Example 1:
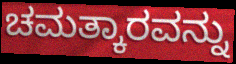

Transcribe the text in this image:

ಚಮತ್ಕಾರವನ್ನು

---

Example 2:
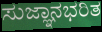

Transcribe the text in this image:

ಸುಜ್ಞಾನಭರಿತ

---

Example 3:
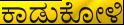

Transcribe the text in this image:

ಕಾಡುಕೋಳಿ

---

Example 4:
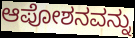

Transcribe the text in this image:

ಆಪೋಶನವನ್ನು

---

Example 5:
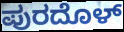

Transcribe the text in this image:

ಪುರದೊಳ್